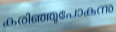
കരിഞ്ഞുപോകുന്നു